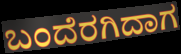
ಬಂದೆರಗಿದಾಗ